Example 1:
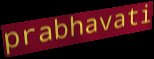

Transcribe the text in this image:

prabhavati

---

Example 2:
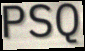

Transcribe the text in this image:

PSQ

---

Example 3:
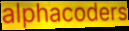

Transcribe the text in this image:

alphacoders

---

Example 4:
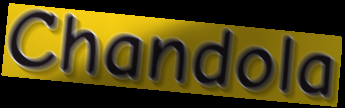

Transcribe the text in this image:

Chandola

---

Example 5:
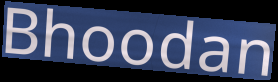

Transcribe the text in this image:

Bhoodan